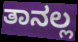
ತಾನಲ್ಲ